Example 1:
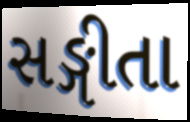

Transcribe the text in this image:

સઙ્ગીતા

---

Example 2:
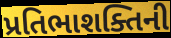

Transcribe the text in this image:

પ્રતિભાશક્તિની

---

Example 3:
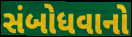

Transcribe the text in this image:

સંબોધવાનો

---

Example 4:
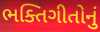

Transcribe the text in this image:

ભક્તિગીતોનું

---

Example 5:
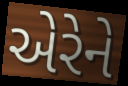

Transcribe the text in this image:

એરેને